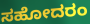
ಸಹೋದರಂ